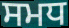
ਸਮਧ